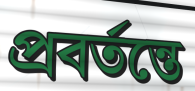
প্রবর্তন্তে